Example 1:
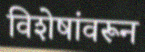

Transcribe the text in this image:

विशेषांवरून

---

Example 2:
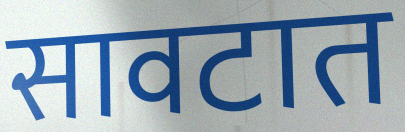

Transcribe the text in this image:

सावटात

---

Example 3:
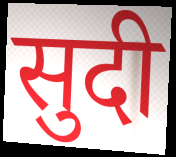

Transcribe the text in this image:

सुदी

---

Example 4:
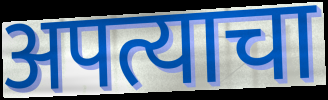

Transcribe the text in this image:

अपत्याचा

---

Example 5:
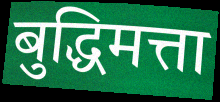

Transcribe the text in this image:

बुद्धिमत्ता